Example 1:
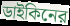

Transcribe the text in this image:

ডাইকিনের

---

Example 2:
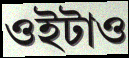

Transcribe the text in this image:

ওইটাও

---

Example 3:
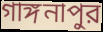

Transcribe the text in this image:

গাঙ্গনাপুর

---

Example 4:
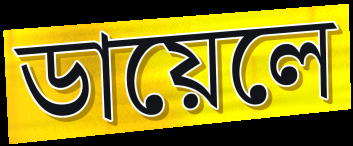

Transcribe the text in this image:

ডায়েলে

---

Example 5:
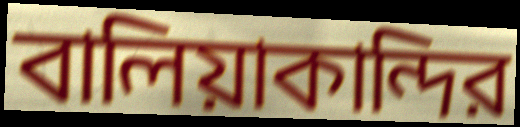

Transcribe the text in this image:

বালিয়াকান্দির